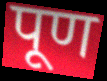
पूण